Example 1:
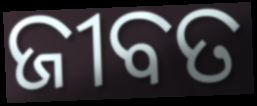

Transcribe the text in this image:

ଜୀବତ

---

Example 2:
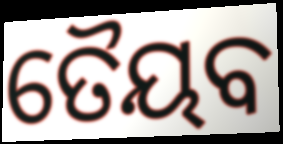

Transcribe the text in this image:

ତୈୟବ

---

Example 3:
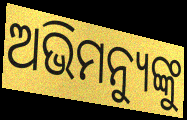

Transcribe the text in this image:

ଅଭିମନ୍ୟୁଙ୍କୁ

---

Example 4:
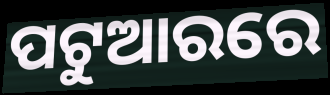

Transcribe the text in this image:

ପଟୁଆରରେ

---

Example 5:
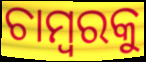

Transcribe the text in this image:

ଚାମ୍ବରକୁ